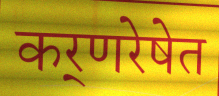
कर्णरेषेत